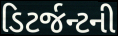
ડિટર્જન્ટની